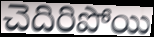
చెదిరిపోయి